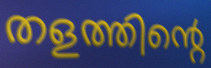
തളത്തിന്റെ